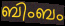
ബിംബം